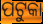
ପଟୁକା